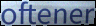
oftener